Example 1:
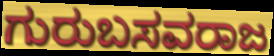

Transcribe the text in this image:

ಗುರುಬಸವರಾಜ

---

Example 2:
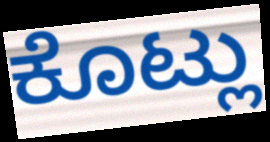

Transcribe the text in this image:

ಕೊಟ್ಲು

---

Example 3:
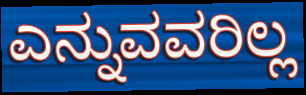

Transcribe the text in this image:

ಎನ್ನುವವರಿಲ್ಲ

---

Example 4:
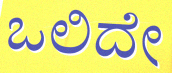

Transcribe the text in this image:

ಒಲಿದೇ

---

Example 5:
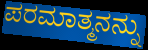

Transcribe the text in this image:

ಪರಮಾತ್ಮನನ್ನು